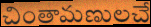
చింతామణులచే